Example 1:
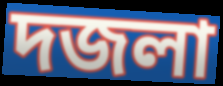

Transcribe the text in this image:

দজলা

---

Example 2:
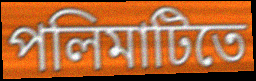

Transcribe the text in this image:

পলিমাটিতে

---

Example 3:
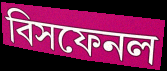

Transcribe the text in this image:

বিসফেনল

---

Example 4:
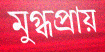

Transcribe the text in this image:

মুগ্ধপ্রায়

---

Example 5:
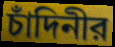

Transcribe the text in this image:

চাঁদিনীর